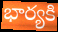
భార్యకి